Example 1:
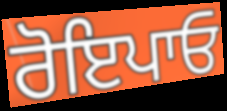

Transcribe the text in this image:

ਰੋਇਪਾਓ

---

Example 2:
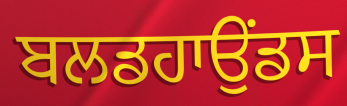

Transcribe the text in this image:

ਬਲਡਹਾਉਂਡਸ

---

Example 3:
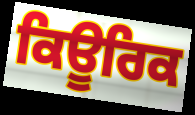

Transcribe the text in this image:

ਕਿਊਰਿਕ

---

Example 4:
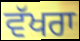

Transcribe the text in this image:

ਵੱਖਰਾ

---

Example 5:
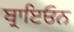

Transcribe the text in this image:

ਬ੍ਰਾਇਓਨ